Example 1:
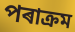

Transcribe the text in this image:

পৰাক্ৰম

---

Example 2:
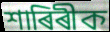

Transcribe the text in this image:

শাৰিৰীক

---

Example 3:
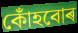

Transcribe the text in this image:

কোঁহবোৰ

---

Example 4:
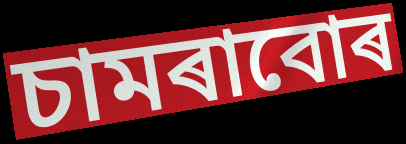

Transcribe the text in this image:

চামৰাবোৰ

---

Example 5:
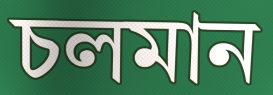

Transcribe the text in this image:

চলমান